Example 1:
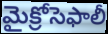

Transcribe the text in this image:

మైక్రోసెఫాలీ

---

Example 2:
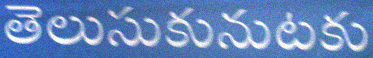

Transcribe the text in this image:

తెలుసుకునుటకు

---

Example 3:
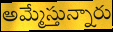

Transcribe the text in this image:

అమ్మేస్తున్నారు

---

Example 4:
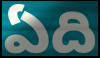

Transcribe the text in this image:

ఏది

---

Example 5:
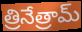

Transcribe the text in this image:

త్రినేత్రామ్